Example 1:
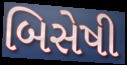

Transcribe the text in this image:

બિસેષી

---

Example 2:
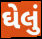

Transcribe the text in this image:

ઘેલું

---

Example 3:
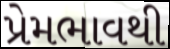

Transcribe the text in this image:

પ્રેમભાવથી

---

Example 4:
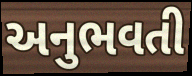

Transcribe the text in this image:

અનુભવતી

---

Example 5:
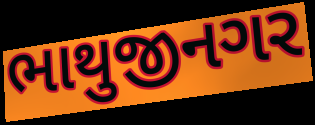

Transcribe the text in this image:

ભાથુજીનગર